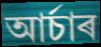
আৰ্চাৰ